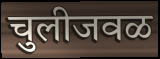
चुलीजवळ